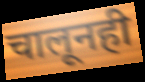
चालूनही